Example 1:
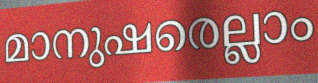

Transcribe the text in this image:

മാനുഷരെല്ലാം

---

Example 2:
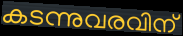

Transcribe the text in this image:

കടന്നുവരവിന്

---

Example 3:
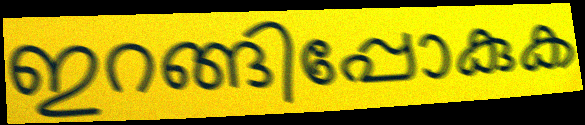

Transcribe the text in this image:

ഇറങ്ങിപ്പോകുക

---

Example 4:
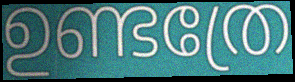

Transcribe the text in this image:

ഉണ്ടത്രേ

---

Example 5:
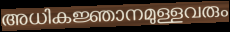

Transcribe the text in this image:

അധികജ്ഞാനമുള്ളവരും